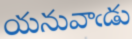
యనువాఁడు